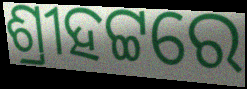
ଶ୍ରୀହଟ୍ଟରେ